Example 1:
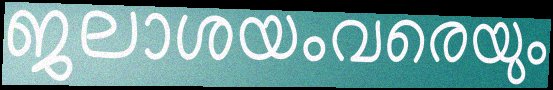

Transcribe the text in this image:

ജലാശയംവരെയും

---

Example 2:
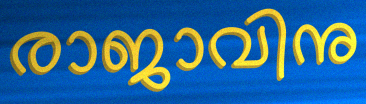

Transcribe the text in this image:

രാജാവിനു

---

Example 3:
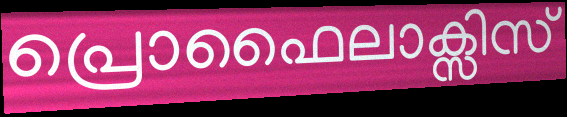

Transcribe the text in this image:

പ്രൊഫൈലാക്സിസ്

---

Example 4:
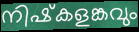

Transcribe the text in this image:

നിഷ്‌കളങ്കവും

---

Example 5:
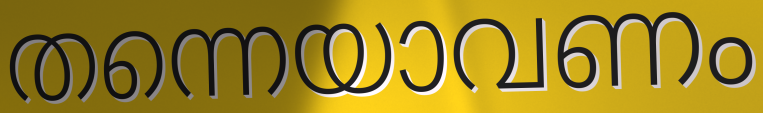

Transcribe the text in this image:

തന്നെയാവണം